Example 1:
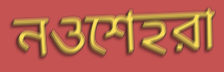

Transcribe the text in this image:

নওশেহরা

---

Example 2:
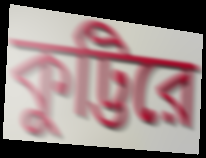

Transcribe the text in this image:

কুট্টিরে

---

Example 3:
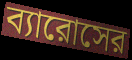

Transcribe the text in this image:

ব্যারোসের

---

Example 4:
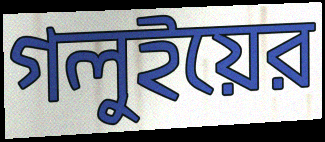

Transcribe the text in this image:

গলুইয়ের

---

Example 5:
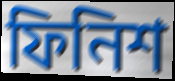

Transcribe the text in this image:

ফিনিশ